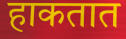
हाकतात